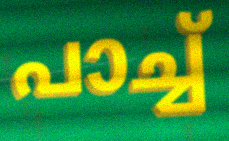
പാച്ച്